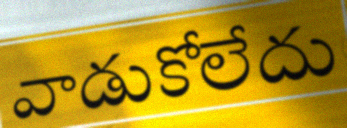
వాడుకోలేదు